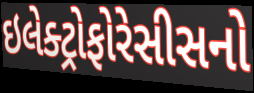
ઇલેક્ટ્રોફોરેસીસનો